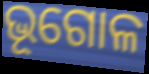
ଭୂଗୋଳ